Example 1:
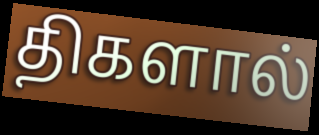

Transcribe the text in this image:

திகளால்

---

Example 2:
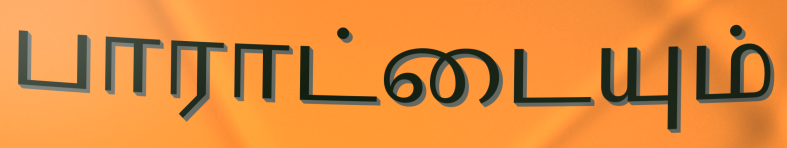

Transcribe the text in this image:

பாராட்டையும்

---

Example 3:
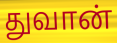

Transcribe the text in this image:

துவான்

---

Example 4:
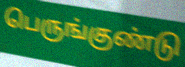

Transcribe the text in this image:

பெருங்குண்டு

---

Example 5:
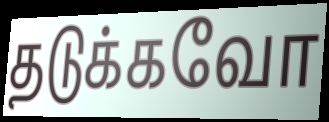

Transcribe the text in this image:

தடுக்கவோ